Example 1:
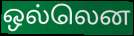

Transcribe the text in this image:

ஒல்லென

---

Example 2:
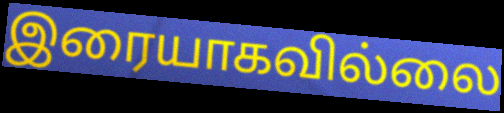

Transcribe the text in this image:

இரையாகவில்லை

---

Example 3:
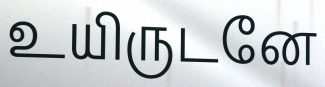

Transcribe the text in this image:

உயிருடனே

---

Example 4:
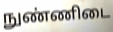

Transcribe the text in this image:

நுண்ணிடை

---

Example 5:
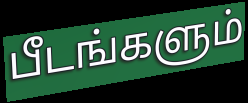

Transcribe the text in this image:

பீடங்களும்